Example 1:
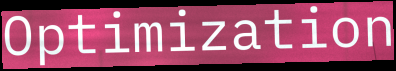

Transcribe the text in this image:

Optimization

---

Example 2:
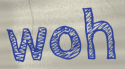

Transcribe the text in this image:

woh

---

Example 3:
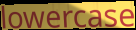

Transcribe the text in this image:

lowercase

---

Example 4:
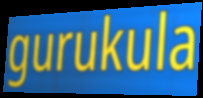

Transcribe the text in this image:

gurukula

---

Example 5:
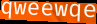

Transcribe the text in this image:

qweewqe